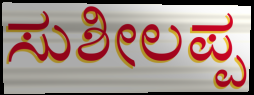
ಸುಶೀಲಪ್ಪ